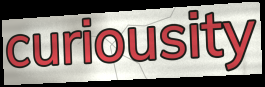
curiousity